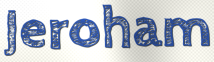
Jeroham